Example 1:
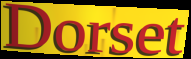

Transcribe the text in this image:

Dorset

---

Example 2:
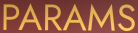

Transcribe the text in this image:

PARAMS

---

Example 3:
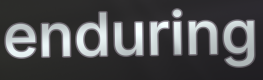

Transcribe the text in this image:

enduring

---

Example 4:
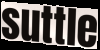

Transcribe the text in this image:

suttle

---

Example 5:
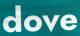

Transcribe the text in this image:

dove